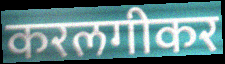
करलगीकर